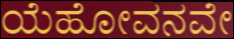
ಯೆಹೋವನವೇ